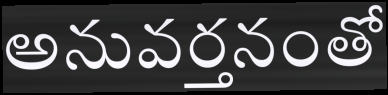
అనువర్తనంతో